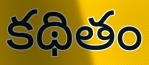
కథితం